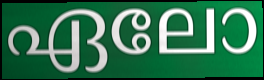
ഏലോ